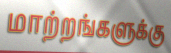
மாற்றங்களுக்கு